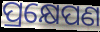
ପ୍ରକ୍ଷେପଣ